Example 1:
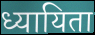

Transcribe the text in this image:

ध्यायिता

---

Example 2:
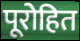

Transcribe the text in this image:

पूरोहित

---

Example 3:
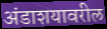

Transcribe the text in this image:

अंडाशयावरील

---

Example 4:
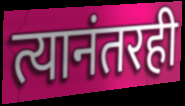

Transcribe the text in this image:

त्यानंतरही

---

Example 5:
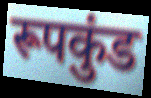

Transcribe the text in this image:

रूपकुंड